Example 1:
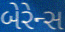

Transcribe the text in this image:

બેરેન્સ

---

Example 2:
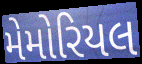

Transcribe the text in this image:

મેમોરિયલ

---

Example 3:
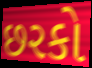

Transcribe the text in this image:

છરકો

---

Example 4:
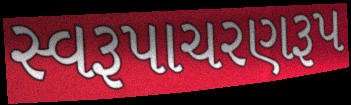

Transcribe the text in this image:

સ્વરૂપાચરણરૂપ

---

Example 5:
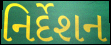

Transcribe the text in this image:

નિર્દેશન